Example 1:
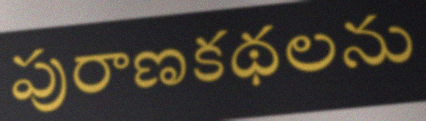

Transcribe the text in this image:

పురాణకథలను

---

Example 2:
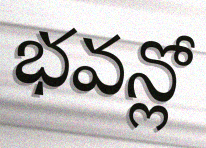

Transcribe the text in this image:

భవన్లో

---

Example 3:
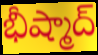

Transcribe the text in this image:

భీష్మాద్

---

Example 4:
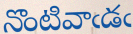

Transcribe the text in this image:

నొంటివాఁడఁ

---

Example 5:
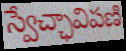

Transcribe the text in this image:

స్వేచ్ఛావిపణి